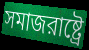
সমাজরাষ্ট্রে